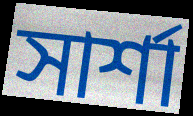
সার্শা